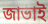
জাভাই